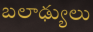
బలాఢ్యులు